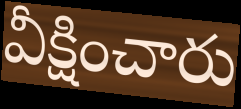
వీక్షించారు